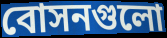
বোসনগুলো